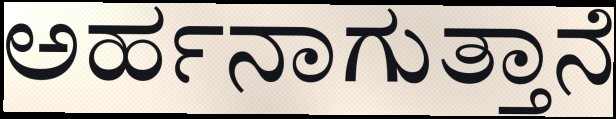
ಅರ್ಹನಾಗುತ್ತಾನೆ